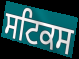
ਸਟਿਕਸ